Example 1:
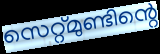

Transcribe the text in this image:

സെറ്റ്മുണ്ടിന്റെ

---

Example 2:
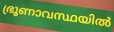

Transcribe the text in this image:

ഭ്രൂണാവസ്ഥയിൽ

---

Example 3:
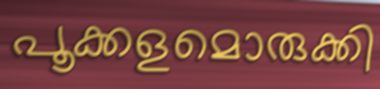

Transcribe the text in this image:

പൂക്കളമൊരുക്കി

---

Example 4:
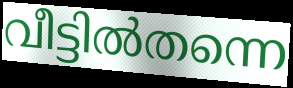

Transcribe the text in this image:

വീട്ടിൽതന്നെ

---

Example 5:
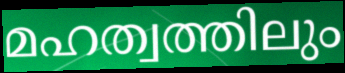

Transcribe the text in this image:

മഹത്വത്തിലും